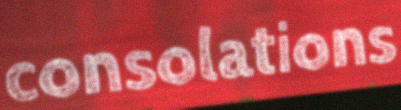
consolations